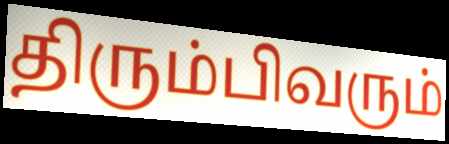
திரும்பிவரும்